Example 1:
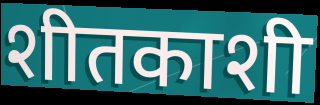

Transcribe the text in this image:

शीतकाशी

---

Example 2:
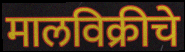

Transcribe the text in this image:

मालविक्रीचे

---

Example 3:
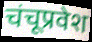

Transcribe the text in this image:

चंचूप्रवेश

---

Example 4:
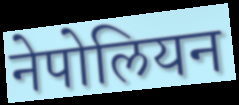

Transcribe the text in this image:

नेपोलियन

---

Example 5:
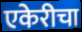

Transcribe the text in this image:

एकेरीचा